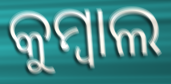
କୁମ୍ବାଲ